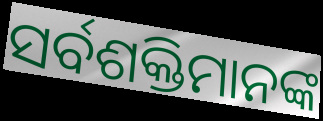
ସର୍ବଶକ୍ତିମାନଙ୍କ